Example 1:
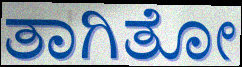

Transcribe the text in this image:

ತಾಗಿತೋ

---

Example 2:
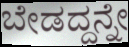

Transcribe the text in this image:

ಬೇಡದ್ದನ್ನೇ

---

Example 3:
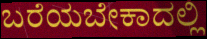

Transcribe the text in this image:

ಬರೆಯಬೇಕಾದಲ್ಲಿ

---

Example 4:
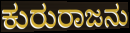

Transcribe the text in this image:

ಕುರುರಾಜನು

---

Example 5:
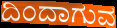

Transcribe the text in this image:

ದಿಂದಾಗುವ